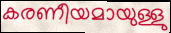
കരണീയമായുള്ളു